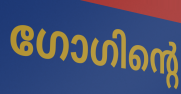
ഗോഗിന്റെ